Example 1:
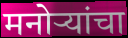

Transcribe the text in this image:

मनोर्‍यांचा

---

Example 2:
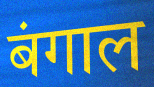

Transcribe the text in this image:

बंगाल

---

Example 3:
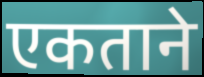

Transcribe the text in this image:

एकताने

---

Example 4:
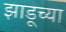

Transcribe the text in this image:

झाडूच्या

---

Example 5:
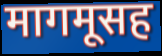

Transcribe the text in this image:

मागमूसह